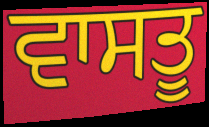
ਵਾਸਤੂ